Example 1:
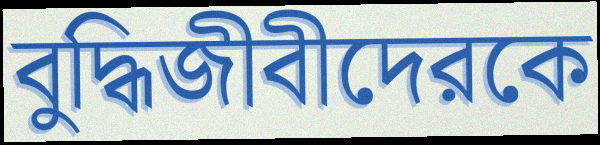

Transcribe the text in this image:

বুদ্ধিজীবীদেরকে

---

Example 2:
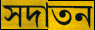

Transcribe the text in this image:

সদাতন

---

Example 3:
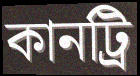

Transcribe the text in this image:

কানট্রি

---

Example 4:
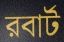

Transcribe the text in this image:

রবার্ট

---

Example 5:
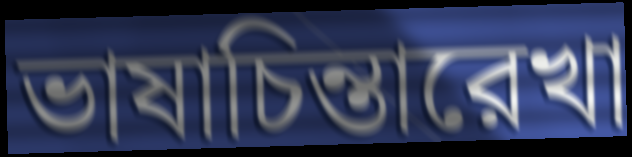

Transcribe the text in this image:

ভাষাচিন্তারেখা